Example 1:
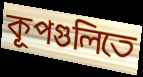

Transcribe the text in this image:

কূপগুলিতে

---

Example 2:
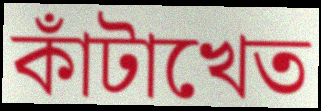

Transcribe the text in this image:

কাঁটাখেত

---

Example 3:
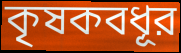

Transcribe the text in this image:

কৃষকবধূর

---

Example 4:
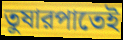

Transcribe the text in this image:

তুষারপাতেই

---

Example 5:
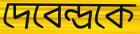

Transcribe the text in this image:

দেবেন্দ্রকে